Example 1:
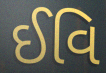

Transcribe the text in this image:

ઈવિ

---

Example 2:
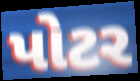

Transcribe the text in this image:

પોટર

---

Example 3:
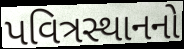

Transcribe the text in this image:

પવિત્રસ્થાનનો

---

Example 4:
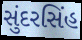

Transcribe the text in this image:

સુંદરસિંહ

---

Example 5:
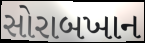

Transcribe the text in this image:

સોરાબખાન